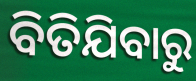
ବିତିଯିବାରୁ